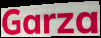
Garza